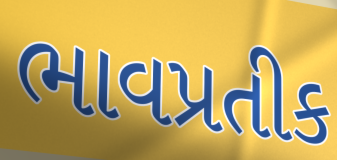
ભાવપ્રતીક